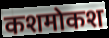
कशमोकश